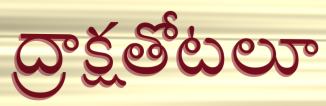
ద్రాక్షతోటలూ